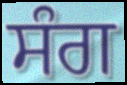
ਸੰਗ